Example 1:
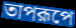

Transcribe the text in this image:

তাপরূপে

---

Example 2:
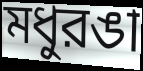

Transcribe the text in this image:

মধুরঙা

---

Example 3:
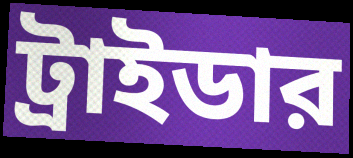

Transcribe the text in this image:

ট্রাইডার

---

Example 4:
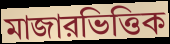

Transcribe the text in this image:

মাজারভিত্তিক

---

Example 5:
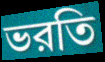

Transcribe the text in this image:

ভরতি